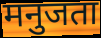
मनुजता